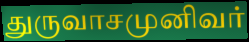
துருவாசமுனிவர்